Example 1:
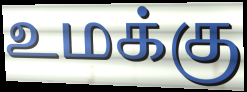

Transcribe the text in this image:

உமக்கு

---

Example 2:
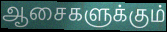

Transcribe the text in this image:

ஆசைகளுக்கும்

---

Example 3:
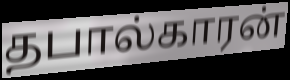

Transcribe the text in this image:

தபால்காரன்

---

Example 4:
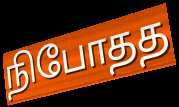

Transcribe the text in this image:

நிபோதத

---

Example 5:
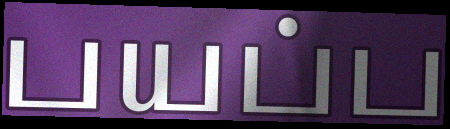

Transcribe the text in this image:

பயப்ப